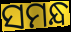
ସମନ୍ଧ